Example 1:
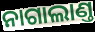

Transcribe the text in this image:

ନାଗାଲାଣ୍ତ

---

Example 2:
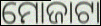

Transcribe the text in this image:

ମୋଜାଟା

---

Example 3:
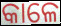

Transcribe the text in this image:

କାଳେ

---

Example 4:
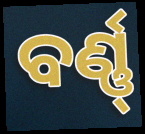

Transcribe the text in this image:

ବର୍ଣ୍ଣ୍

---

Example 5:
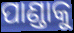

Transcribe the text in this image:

ପାଣ୍ଡାକୁ